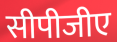
सीपीजीए